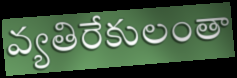
వ్యతిరేకులంతా